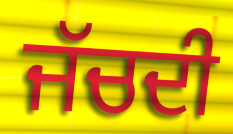
ਜੱਚਦੀ